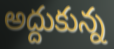
అద్దుకున్న